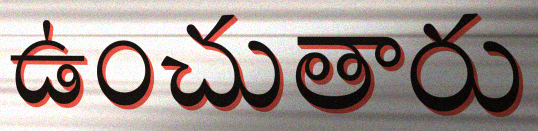
ఉంచుతారు